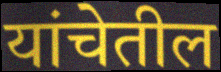
यांचेतील